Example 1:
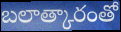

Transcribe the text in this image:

బలాత్కారంతో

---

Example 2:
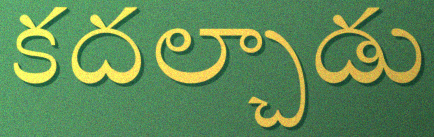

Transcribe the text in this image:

కదల్చాడు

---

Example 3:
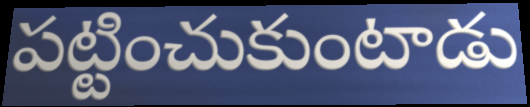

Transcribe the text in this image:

పట్టించుకుంటాడు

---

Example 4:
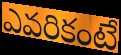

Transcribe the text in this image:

ఎవరికంటే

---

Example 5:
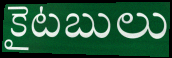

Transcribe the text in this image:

కైటబులు